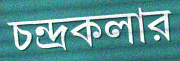
চন্দ্রকলার